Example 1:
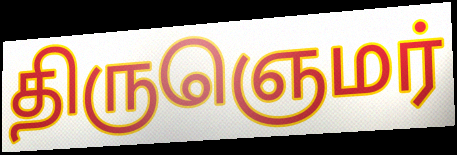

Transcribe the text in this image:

திருஞெமர்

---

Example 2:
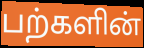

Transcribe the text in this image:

பற்களின்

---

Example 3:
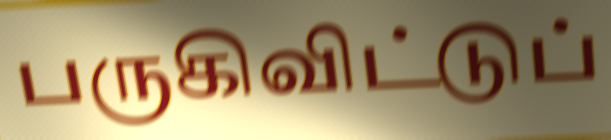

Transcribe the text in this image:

பருகிவிட்டுப்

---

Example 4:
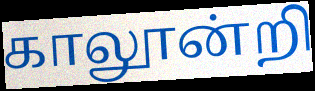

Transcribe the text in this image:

காலூன்றி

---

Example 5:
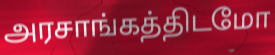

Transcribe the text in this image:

அரசாங்கத்திடமோ